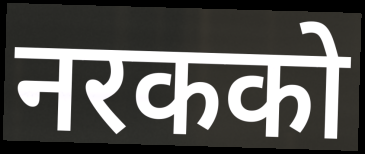
नरकको